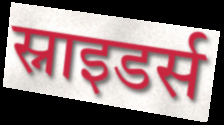
स्नाइडर्स